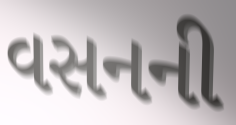
વસનની